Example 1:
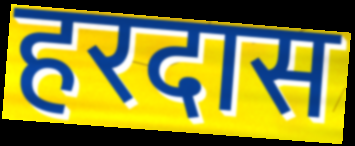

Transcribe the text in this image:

हरदास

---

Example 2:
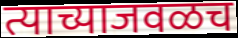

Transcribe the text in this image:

त्याच्याजवळच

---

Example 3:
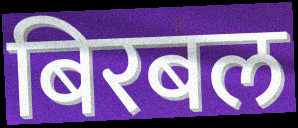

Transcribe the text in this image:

बिरबल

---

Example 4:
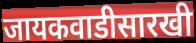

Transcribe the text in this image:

जायकवाडीसारखी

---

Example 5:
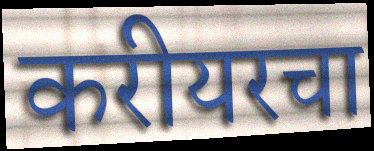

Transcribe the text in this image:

करीयरचा